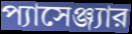
প্যাসেঞ্জ্যার